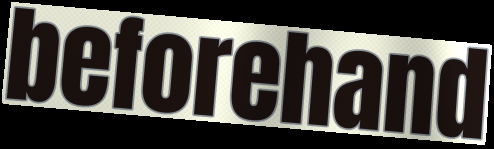
beforehand